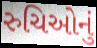
રુચિઓનું